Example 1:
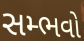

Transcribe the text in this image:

સમ્ભવો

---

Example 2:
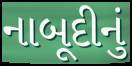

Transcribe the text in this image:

નાબૂદીનું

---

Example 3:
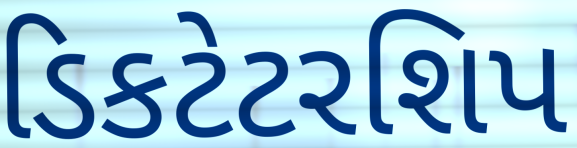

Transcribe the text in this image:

ડિકટેટરશિપ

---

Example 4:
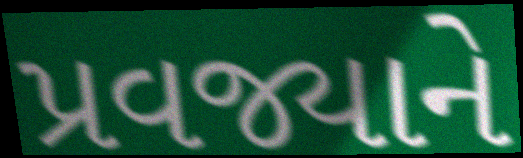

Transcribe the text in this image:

પ્રવજ્યાને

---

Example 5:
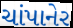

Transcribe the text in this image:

ચાંપાનેર